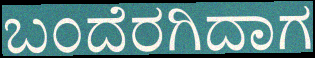
ಬಂದೆರಗಿದಾಗ